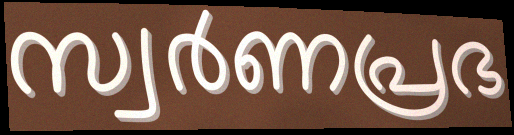
സ്വർണപ്രഭ